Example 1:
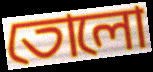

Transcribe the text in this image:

তোলো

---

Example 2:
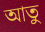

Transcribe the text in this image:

আতু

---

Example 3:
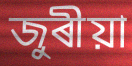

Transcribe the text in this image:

জুৰীয়া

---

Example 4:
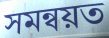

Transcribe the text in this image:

সমন্বয়ত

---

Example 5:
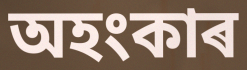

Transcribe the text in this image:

অহংকাৰ